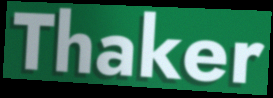
Thaker